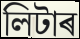
লিটাৰ